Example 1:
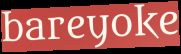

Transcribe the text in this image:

bareyoke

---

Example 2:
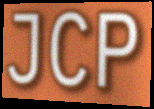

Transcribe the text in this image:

JCP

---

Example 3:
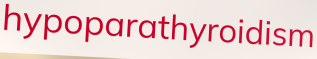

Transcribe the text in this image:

hypoparathyroidism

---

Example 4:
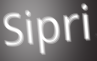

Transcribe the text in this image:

Sipri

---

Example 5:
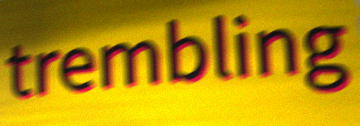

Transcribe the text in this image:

trembling